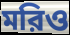
মরিও